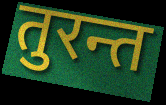
तुरन्त